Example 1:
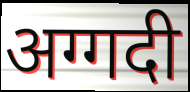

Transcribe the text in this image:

अग्गदी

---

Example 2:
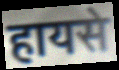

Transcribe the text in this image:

हायसे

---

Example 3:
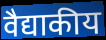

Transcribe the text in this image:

वैद्याकीय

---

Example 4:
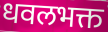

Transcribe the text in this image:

धवलभक्त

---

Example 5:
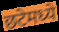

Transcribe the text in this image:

छटेमध्ये